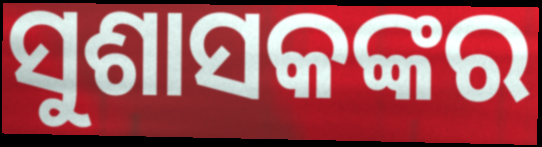
ସୁଶାସକଙ୍କର